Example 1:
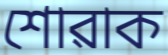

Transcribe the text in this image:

শোৱাক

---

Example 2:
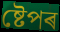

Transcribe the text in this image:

ষ্টেপৰ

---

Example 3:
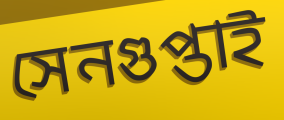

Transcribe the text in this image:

সেনগুপ্তাই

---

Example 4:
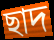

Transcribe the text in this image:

ছাদ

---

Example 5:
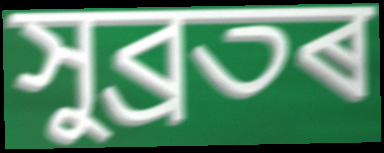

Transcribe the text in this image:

সুব্ৰতৰ